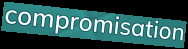
compromisation